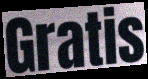
Gratis